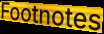
Footnotes